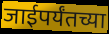
जाईपर्यंतच्या